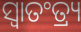
ସ୍ଵାତଂତ୍ର୍ୟ